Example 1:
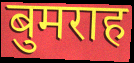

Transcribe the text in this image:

बुमराह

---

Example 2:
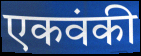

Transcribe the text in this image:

एकवंकी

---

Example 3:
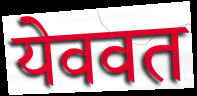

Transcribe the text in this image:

येववत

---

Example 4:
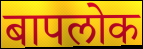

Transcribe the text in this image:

बापलोक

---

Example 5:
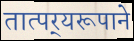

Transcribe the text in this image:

तात्पर्यरूपाने